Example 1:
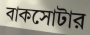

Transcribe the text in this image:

বাকসোটার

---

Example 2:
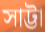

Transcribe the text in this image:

সাট্টা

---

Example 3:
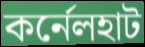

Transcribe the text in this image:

কর্নেলহাট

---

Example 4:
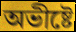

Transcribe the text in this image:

অভীষ্টে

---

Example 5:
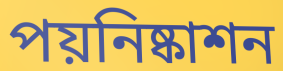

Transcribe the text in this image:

পয়নিষ্কাশন